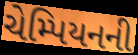
ચેમ્પિયનની